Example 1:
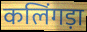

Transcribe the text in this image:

कलिंगड़ा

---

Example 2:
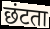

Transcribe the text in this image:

छंटता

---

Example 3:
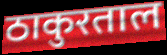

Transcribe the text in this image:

ठाकुरताल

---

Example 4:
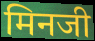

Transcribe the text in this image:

मिनजी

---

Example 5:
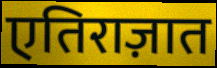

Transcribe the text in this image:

एतिराज़ात